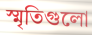
স্মৃতিগুলো